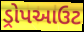
ડ્રોપઆઉટ